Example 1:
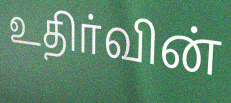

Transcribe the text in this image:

உதிர்வின்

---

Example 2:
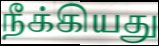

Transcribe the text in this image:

நீக்கியது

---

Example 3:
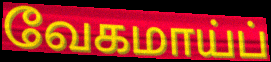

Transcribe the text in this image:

வேகமாய்ப்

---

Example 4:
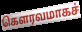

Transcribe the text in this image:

கௌரவமாகச்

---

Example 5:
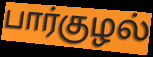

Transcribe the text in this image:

பார்குழல்